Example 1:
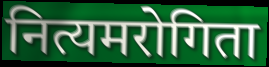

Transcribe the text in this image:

नित्यमरोगिता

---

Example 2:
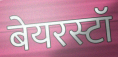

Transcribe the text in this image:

बेयरस्टॉ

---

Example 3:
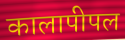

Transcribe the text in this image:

कालापीपल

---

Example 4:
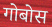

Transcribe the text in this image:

गोबोस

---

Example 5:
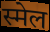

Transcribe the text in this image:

स्‍मेल